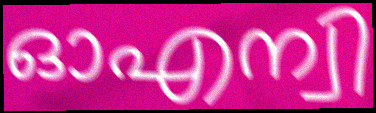
ഓഎന്വി